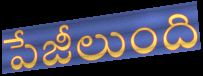
పేజీలుంది